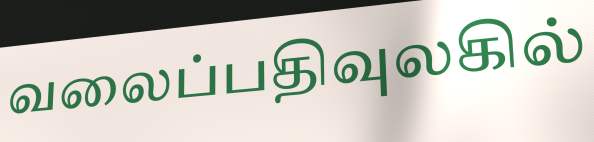
வலைப்பதிவுலகில்